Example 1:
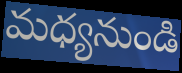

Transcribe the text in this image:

మధ్యనుండి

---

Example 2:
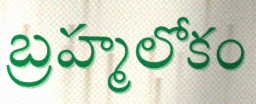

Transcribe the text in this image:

బ్రహ్మలోకం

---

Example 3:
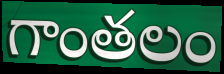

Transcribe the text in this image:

గాంతలం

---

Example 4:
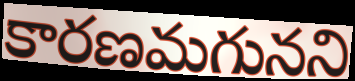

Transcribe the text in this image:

కారణమగునని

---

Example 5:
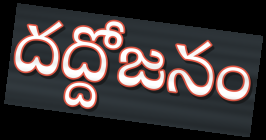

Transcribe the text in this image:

దద్దోజనం